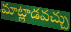
మాట్లాడవచ్చు